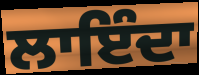
ਲਾਇੰਦਾ